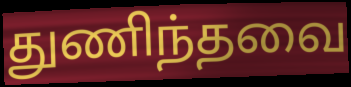
துணிந்தவை